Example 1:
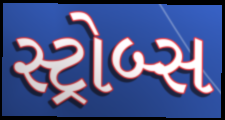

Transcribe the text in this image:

સ્ટ્રોબ્સ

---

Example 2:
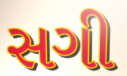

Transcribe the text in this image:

સગી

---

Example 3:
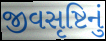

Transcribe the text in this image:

જીવસૃષ્ટિનું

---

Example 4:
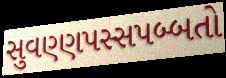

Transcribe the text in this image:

સુવણ્ણપસ્સપબ્બતો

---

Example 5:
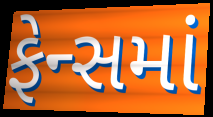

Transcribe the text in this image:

ફેન્સમાં